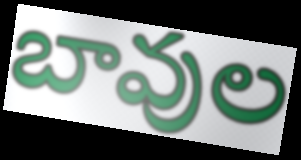
బావుల